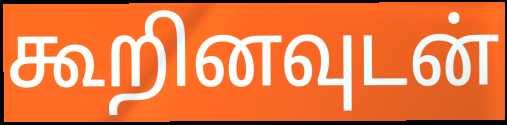
கூறினவுடன்